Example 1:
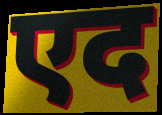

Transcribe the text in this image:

एद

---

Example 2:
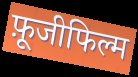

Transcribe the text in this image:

फ़ूजीफिल्म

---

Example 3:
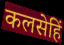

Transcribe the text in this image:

कलसेहिं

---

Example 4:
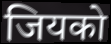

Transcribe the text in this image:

जियको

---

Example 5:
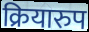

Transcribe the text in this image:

क्रियारुप